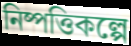
নিষ্পত্তিকল্পে